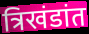
त्रिखंडांत